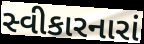
સ્વીકારનારાં